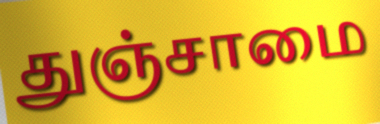
துஞ்சாமை